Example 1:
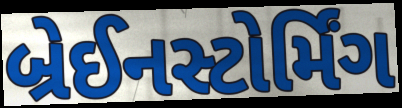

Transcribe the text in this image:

બ્રેઈનસ્ટોર્મિંગ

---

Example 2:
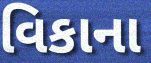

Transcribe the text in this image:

વિકાના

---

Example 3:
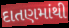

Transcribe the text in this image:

દાતણમાંથી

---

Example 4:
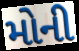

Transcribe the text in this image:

મોની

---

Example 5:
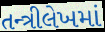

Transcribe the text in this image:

તન્ત્રીલેખમાં